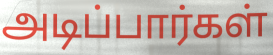
அடிப்பார்கள்